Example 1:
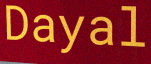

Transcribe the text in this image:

Dayal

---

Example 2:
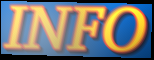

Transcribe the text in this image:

INFO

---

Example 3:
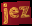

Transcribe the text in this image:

jez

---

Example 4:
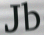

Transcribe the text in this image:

Jb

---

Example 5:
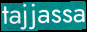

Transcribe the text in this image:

tajjassa